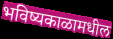
भविष्यकाळामधील